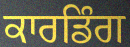
ਕਾਰਡਿੰਗ